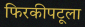
फिरकीपटूला